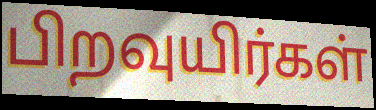
பிறவுயிர்கள்